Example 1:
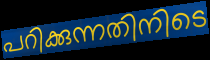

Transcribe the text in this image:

പറിക്കുന്നതിനിടെ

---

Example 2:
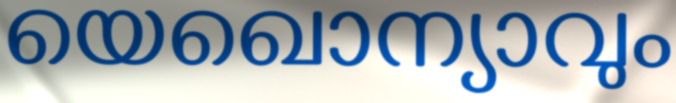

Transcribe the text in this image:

യെഖൊന്യാവും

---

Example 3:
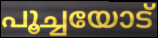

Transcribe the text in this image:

പൂച്ചയോട്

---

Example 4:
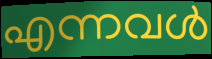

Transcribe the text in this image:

എന്നവൾ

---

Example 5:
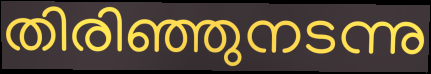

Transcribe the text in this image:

തിരിഞ്ഞുനടന്നു